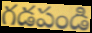
గడపండి